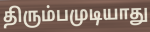
திரும்பமுடியாது